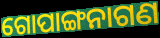
ଗୋପାଙ୍ଗନାଗଣ